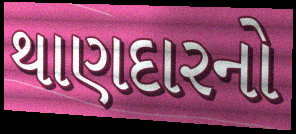
થાણદારનો